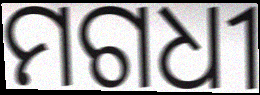
ମଗଧୀ